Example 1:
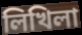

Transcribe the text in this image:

লিখিলা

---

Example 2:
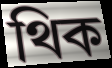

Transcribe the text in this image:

থিক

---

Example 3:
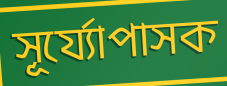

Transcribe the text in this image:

সূৰ্য্যোপাসক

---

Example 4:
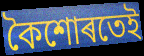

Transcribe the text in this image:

কৈশোৰতেই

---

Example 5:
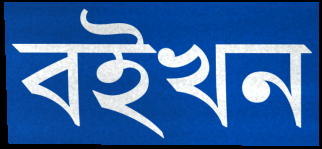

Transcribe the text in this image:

বইখন